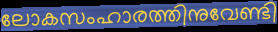
ലോകസംഹാരത്തിനുവേണ്ടി